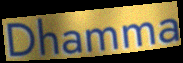
Dhamma